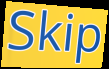
Skip